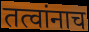
तत्वांनाच